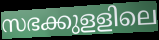
സഭക്കുളളിലെ